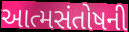
આત્મસંતોષની